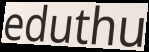
eduthu